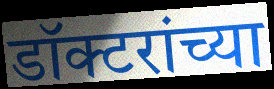
डॉक्‍टरांच्या